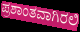
ಪ್ರಶಾಂತವಾಗಿರಲಿ